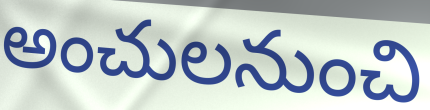
అంచులనుంచి